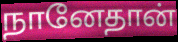
நானேதான்